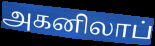
அகனிலாப்